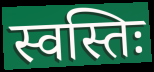
स्वस्तिः